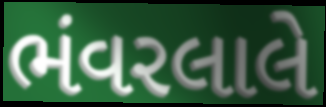
ભંવરલાલે